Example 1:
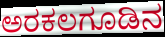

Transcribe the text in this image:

ಅರಕಲಗೂಡಿನ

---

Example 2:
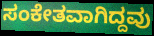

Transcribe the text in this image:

ಸಂಕೇತವಾಗಿದ್ದವು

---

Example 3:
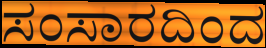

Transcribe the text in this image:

ಸಂಸಾರದಿಂದ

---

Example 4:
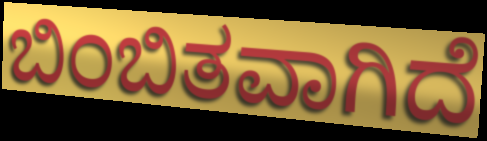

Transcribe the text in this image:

ಬಿಂಬಿತವಾಗಿದೆ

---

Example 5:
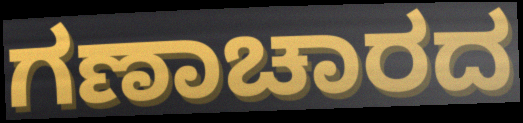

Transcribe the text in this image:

ಗಣಾಚಾರದ